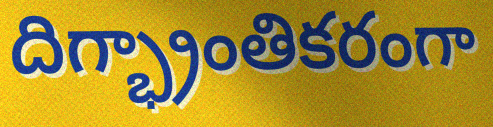
దిగ్భ్రాంతికరంగా